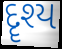
દૄશ્ય